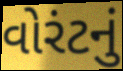
વોરંટનું